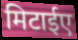
मिटाईए